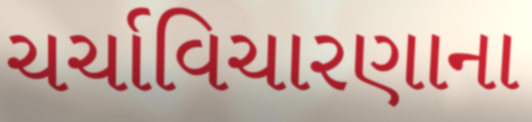
ચર્ચાવિચારણાના